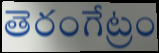
తెరంగేట్రం